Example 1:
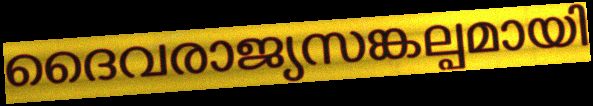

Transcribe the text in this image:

ദൈവരാജ്യസങ്കല്പമായി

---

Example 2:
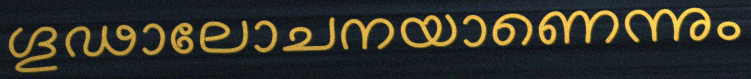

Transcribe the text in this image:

ഗൂഢാലോചനയാണെന്നും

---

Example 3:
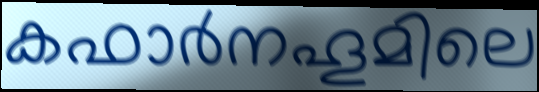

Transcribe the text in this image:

കഫാർനഹൂമിലെ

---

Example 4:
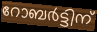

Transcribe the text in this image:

റോബർട്ടിന്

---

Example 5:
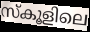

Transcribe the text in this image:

സ്കൂളിലെ